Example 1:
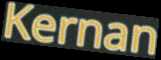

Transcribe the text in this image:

Kernan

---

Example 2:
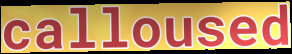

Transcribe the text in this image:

calloused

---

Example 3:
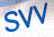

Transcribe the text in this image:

SVV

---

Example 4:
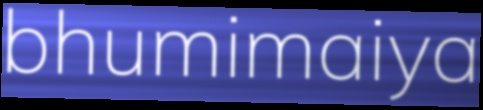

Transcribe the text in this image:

bhumimaiya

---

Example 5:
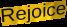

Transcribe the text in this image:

Rejoice